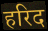
हरिद